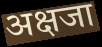
अक्षजा